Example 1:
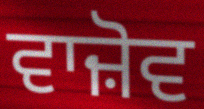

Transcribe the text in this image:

ਵਾਜ਼ੋਵ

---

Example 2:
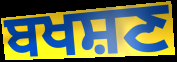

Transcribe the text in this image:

ਬਖਸ਼ਣ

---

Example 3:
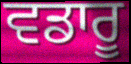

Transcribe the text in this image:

ਵਡਾਰੂ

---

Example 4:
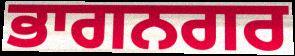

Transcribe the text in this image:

ਭਾਗਨਗਰ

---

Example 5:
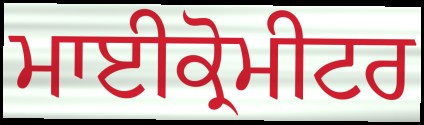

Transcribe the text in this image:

ਮਾਈਕ੍ਰੋਮੀਟਰ